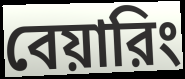
বেয়ারিং